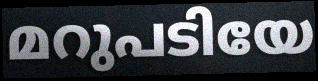
മറുപടിയേ